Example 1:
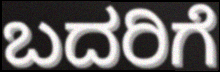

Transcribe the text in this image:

ಬದರಿಗೆ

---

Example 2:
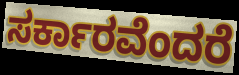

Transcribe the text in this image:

ಸರ್ಕಾರವೆಂದರೆ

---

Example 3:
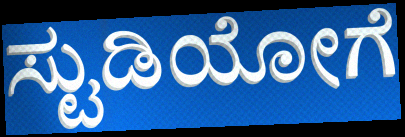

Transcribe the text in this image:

ಸ್ಟುಡಿಯೋಗೆ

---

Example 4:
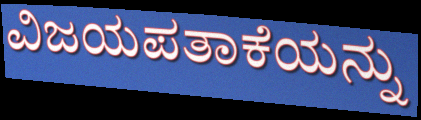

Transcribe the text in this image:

ವಿಜಯಪತಾಕೆಯನ್ನು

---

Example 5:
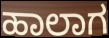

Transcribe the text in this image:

ಹಾಲಾಗ